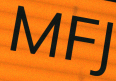
MFJ